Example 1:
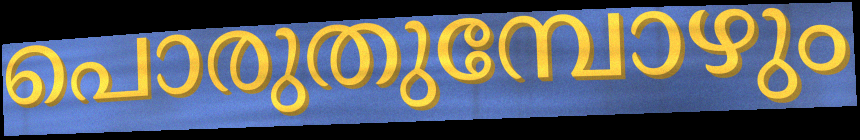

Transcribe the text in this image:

പൊരുതുമ്പോഴും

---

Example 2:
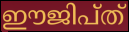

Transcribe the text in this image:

ഈജിപ്ത്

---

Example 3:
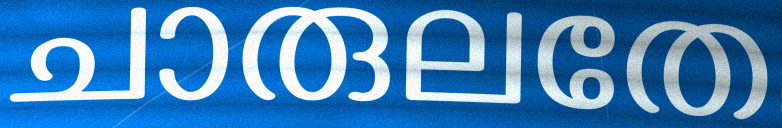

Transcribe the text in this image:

ചാരുലതേ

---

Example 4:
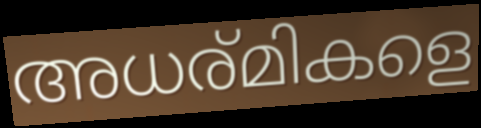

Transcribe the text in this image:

അധര്മികളെ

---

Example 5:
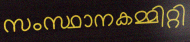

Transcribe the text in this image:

സംസ്ഥാനകമ്മിറ്റി